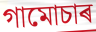
গামোচাৰ